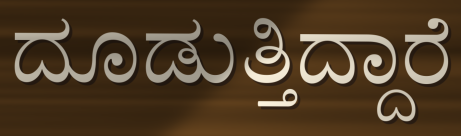
ದೂಡುತ್ತಿದ್ದಾರೆ